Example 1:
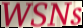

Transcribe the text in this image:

WSNs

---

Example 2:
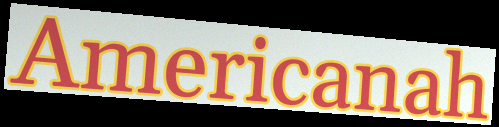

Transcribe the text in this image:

Americanah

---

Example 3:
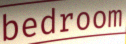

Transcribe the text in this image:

bedroom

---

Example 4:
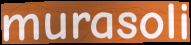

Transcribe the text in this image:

murasoli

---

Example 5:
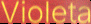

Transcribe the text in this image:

Violeta